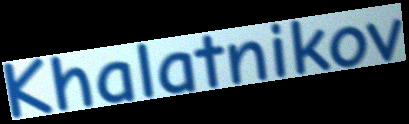
Khalatnikov